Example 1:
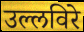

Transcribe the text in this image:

उल्लविरे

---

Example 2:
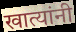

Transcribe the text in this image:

खात्यांनी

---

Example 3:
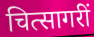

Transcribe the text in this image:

चित्सागरीं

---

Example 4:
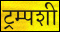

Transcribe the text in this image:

ट्रम्पशी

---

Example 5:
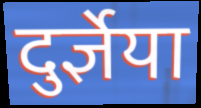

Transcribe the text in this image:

दुर्ज्ञेया